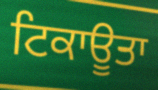
ਟਿਕਾਊਤਾ